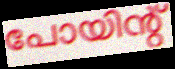
പോയിന്റ്